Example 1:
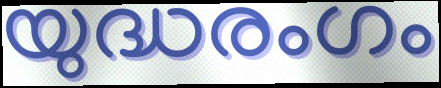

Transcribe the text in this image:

യുദ്ധരംഗം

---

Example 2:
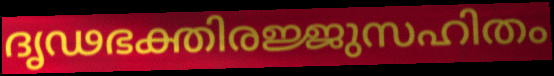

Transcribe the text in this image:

ദൃഢഭക്തിരജ്ജുസഹിതം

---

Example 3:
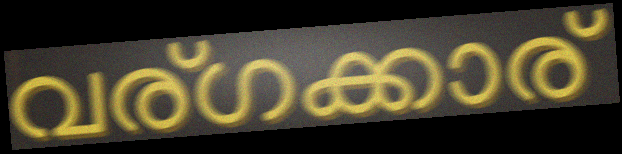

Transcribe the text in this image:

വര്ഗക്കാര്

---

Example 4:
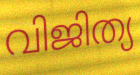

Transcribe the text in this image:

വിജിത്യ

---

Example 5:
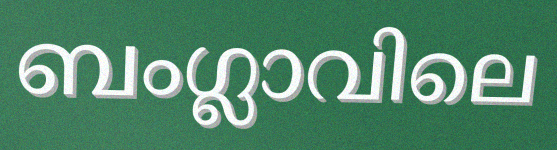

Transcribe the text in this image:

ബംഗ്ലാവിലെ